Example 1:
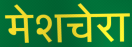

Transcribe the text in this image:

मेशचेरा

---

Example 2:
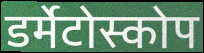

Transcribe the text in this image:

डर्मेटोस्कोप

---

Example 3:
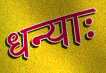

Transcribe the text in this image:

धन्याः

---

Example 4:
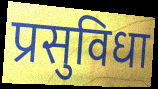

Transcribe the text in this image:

प्रसुविधा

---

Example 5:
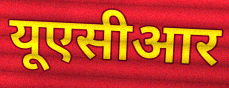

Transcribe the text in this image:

यूएसीआर